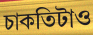
চাকতিটাও